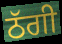
ਠੱਗੀ